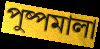
পুষ্পমালা